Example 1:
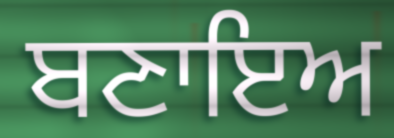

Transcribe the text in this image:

ਬਣਾਇਅ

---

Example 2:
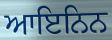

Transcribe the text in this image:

ਆਇਨਿਨ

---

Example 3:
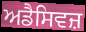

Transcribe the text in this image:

ਅਡੈਸਿਵਜ਼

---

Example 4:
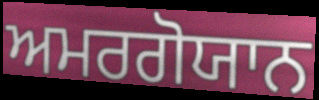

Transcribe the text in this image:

ਅਮਰਗੋਯਾਨ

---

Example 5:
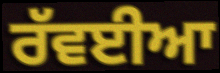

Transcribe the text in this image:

ਰੱਵਈਆ